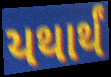
યથાર્થં